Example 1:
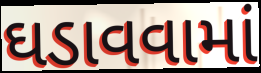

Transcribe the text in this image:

ઘડાવવામાં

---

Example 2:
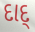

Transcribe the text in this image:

દાદ્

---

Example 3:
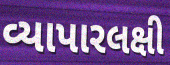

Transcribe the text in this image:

વ્યાપારલક્ષી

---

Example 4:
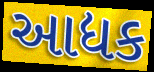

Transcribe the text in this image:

આદ્યક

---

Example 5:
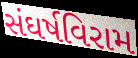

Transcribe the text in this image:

સંઘર્ષવિરામ